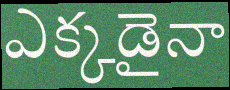
ఎక్కడైనా